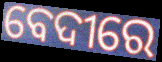
ବେଦୀରେ